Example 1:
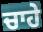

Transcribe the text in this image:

ਚਾਹੇ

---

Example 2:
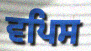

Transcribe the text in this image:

ਵਪਿਸ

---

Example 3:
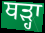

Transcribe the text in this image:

ਥੜ੍ਹਾ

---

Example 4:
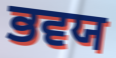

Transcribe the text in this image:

ਭਵਯ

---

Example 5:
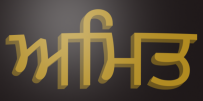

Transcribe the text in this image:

ਅਮਿਤ